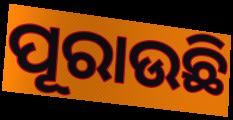
ପୂରାଉଛି